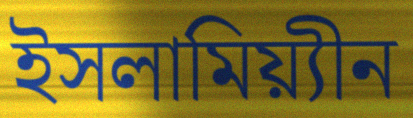
ইসলামিয়্যীন